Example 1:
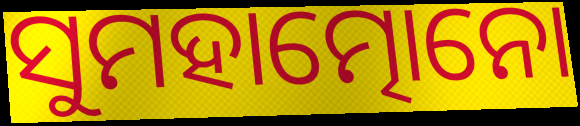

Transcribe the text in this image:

ସୁମହାତ୍ମୋନୋ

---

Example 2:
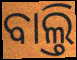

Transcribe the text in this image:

ବାଲ୍ତି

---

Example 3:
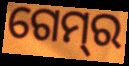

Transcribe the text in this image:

ଗେମ୍‌ର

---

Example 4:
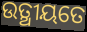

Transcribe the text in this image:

ଉତ୍ଥୀୟତେ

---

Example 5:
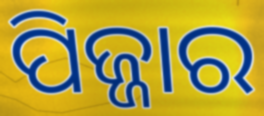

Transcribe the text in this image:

ପିଜ୍ଜାର